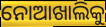
ନୋଆଖାଲିକୁ